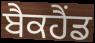
ਬੈਕਹੈਂਡ